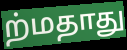
ற்மதாது